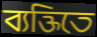
ব্যক্তিতে